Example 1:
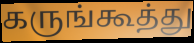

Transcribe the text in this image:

கருங்கூத்து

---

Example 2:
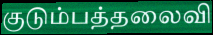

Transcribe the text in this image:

குடும்பத்தலைவி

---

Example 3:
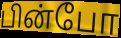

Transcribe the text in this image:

பின்போ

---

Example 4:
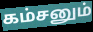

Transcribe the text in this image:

கம்சனும்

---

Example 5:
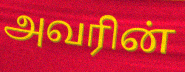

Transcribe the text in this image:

அவரின்